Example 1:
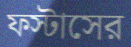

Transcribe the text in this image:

ফস্টাসের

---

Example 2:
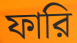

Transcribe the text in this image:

ফারি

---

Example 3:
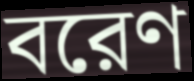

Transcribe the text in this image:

বরেণ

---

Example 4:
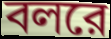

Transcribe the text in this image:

বলরে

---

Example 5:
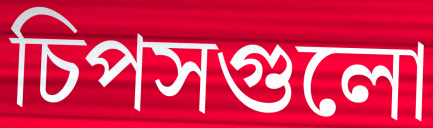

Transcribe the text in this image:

চিপসগুলো